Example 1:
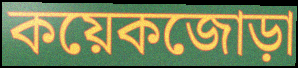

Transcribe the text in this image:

কয়েকজোড়া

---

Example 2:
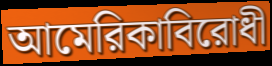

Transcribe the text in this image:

আমেরিকাবিরোধী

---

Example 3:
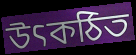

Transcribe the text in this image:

উৎকঠিত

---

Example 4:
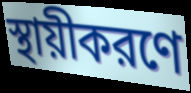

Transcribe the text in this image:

স্থায়ীকরণে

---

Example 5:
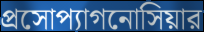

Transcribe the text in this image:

প্রসোপ্যাগনোসিয়ার